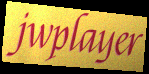
jwplayer